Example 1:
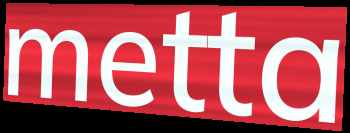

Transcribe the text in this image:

metta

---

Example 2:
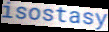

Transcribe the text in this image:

isostasy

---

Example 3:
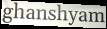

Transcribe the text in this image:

ghanshyam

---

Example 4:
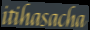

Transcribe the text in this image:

itihasacha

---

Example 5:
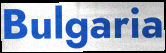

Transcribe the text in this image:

Bulgaria